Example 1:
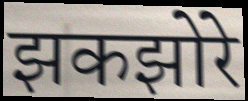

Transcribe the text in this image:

झकझोरे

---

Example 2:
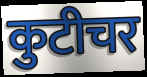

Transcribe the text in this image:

कुटीचर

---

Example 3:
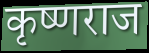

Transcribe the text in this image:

कृष्णराज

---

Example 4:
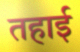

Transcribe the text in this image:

तहाई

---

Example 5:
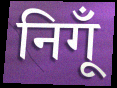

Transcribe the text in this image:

निगूँ